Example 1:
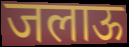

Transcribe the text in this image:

जलाऊ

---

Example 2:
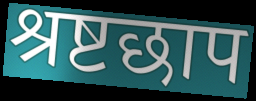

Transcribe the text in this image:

श्रष्टछाप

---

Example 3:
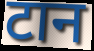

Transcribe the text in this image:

टान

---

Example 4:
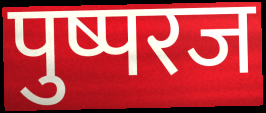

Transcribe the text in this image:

पुष्परज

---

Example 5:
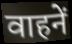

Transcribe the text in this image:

वाहनें